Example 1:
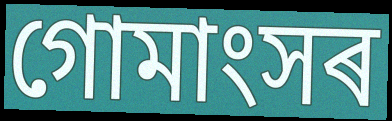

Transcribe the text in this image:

গোমাংসৰ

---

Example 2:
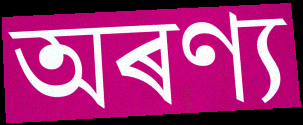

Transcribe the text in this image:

অৰণ্য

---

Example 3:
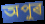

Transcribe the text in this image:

অপুৰ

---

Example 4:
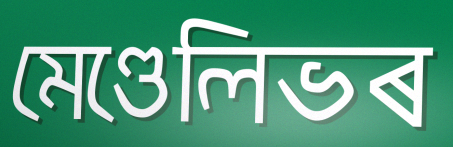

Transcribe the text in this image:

মেণ্ডেলিভৰ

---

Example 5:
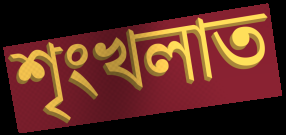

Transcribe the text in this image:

শৃংখলাত